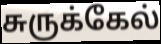
சுருக்கேல்